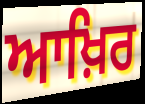
ਆਖ਼ਿਰ